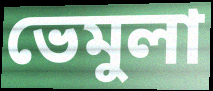
ভেমুলা